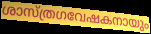
ശാസ്ത്രഗവേഷകനായും